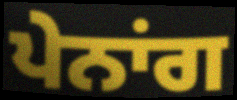
ਪੇਨਾਂਗ